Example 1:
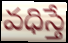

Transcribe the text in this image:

వధిస్తే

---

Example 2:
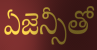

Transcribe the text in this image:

ఏజెన్సీతో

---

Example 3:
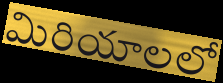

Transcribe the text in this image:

మిరియాలలో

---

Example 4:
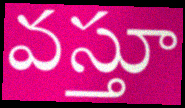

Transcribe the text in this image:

వస్తూ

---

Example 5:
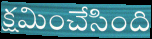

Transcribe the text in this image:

క్షమించేసింది